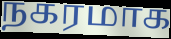
நகரமாக